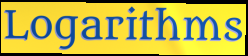
Logarithms